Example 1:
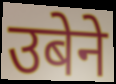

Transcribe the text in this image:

उबेने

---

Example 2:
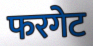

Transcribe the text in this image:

फरगेट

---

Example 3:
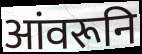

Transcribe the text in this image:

आंवरूनि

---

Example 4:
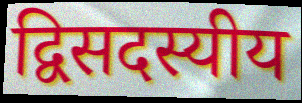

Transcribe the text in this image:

द्विसदस्यीय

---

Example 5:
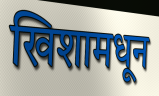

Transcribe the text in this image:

खिशामधून